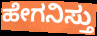
ಹೇಗನಿಸ್ತು